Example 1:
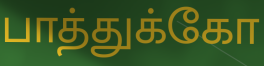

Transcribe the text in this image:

பாத்துக்கோ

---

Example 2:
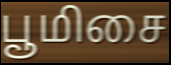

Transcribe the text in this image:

பூமிசை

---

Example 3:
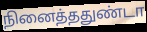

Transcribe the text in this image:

நினைத்ததுண்டா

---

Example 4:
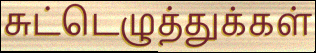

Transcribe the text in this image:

சுட்டெழுத்துக்கள்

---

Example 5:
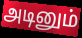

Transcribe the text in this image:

அடினும்